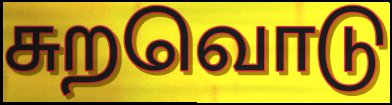
சுறவொடு